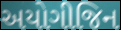
અયોગીજિન